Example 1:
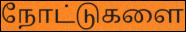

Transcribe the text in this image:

நோட்டுகளை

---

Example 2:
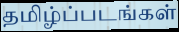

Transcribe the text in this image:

தமிழ்ப்படங்கள்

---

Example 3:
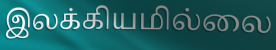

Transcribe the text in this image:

இலக்கியமில்லை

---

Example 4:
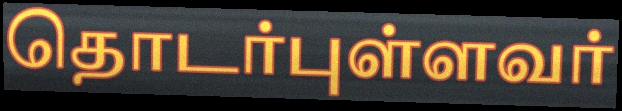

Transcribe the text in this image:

தொடர்புள்ளவர்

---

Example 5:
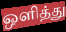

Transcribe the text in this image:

ஒளித்து